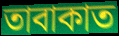
তাবাকাত